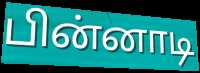
பின்னாடி